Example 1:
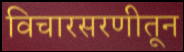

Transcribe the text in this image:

विचारसरणीतून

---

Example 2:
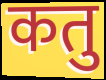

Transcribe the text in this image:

कतु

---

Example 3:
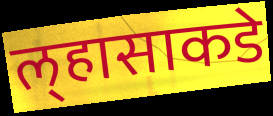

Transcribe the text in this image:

ल्हासाकडे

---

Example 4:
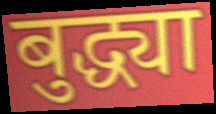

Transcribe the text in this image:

बुद्ध्या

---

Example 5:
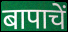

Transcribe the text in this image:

बापाचें